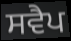
ਸਵੈਪ